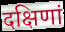
दक्षिणां